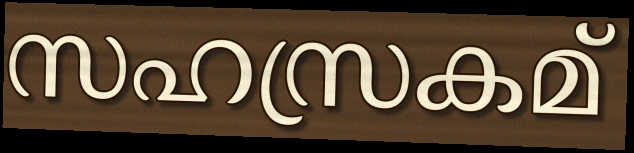
സഹസ്രകമ്